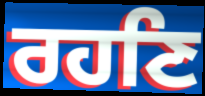
ਰਹਣਿ